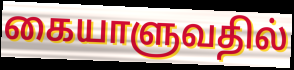
கையாளுவதில்